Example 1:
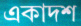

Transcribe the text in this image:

একাদশ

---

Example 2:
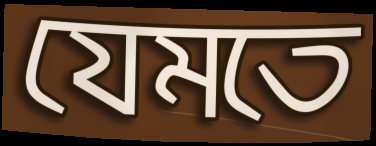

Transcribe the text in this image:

যেমতে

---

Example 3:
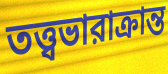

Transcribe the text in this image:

তত্ত্বভারাক্রান্ত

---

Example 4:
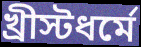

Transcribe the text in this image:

খ্রীস্টধর্মে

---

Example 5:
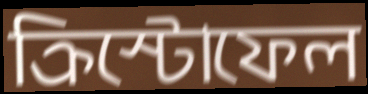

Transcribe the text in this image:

ক্রিস্টোফেল